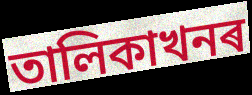
তালিকাখনৰ